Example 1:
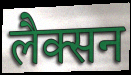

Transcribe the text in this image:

लैक्सन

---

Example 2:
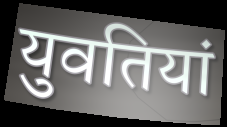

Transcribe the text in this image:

युवतियां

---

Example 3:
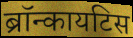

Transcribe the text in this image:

ब्रॉन्कायटिस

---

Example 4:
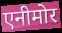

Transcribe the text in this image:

एनीमोर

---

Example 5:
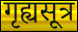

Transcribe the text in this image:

गृह्यसूत्र